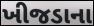
ખીજડાના